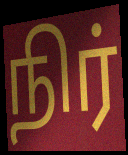
நிர்